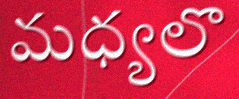
మధ్యలొ